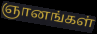
ஞானங்கள்